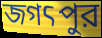
জগৎপুর